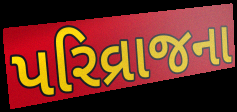
પરિવ્રાજના